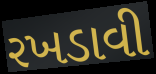
રખડાવી